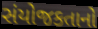
સંયોજકતાનો